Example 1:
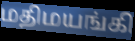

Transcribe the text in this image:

மதிமயங்கி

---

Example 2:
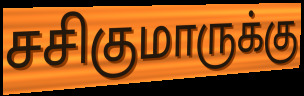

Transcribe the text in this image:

சசிகுமாருக்கு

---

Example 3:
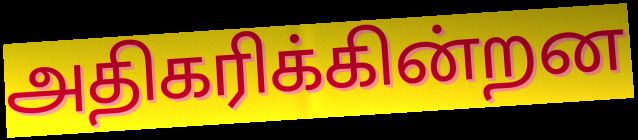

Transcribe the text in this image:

அதிகரிக்கின்றன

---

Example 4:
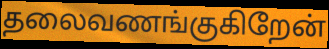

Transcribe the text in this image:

தலைவணங்குகிறேன்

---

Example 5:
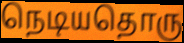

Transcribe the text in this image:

நெடியதொரு